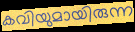
കവിയുമായിരുന്ന